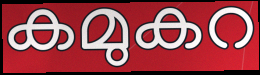
കമുകറ